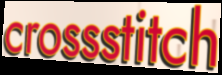
crossstitch